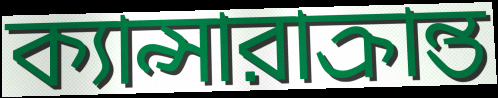
ক্যান্সারাক্রান্ত